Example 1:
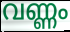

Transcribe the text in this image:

വണ്ണം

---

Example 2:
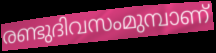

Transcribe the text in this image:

രണ്ടുദിവസംമുമ്പാണ്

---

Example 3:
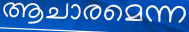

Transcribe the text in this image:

ആചാരമെന്ന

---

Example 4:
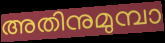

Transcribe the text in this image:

അതിനുമുമ്പാ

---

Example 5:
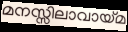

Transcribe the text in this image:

മനസ്സിലാവായ്മ